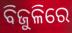
ବିଜୁଳିରେ